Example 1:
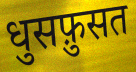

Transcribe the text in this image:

धुसफ़ुसत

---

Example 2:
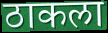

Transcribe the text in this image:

ठाकला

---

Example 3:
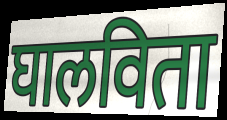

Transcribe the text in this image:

घालविता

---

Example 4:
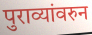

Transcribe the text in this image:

पुराव्यांवरुन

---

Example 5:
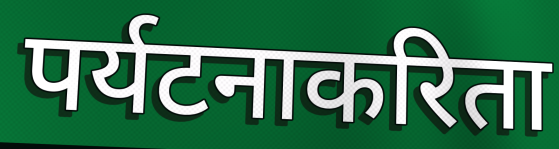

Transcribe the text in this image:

पर्यटनाकरिता